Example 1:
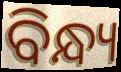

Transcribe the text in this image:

ବିନ୍ଧ୍ୟ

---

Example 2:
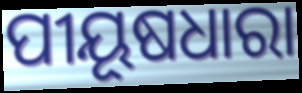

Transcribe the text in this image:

ପୀୟୂଷଧାରା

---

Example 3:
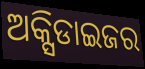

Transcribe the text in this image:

ଅକ୍ସିଡାଇଜର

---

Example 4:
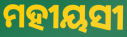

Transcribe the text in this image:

ମହୀୟସୀ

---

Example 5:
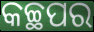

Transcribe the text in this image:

କଚ୍ଛପର